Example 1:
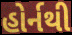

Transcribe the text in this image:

હોર્નથી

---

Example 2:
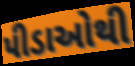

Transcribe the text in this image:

પીડાઓથી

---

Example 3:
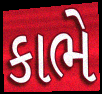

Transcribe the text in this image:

કાભે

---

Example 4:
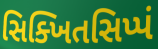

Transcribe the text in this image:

સિક્ખિતસિપ્પં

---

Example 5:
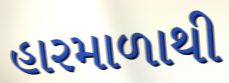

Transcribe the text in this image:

હારમાળાથી